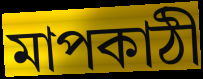
মাপকাঠী